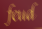
feud